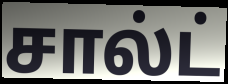
சால்ட்